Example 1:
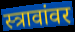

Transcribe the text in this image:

स्त्रावांवर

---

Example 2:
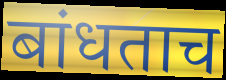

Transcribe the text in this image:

बांधताच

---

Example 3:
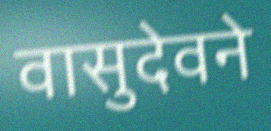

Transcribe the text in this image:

वासुदेवने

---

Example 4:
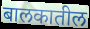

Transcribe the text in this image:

बालकातील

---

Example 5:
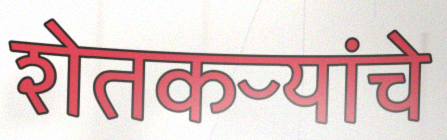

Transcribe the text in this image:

शेतकऱ्यांचे